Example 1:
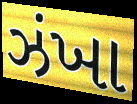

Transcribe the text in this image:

ઝંખા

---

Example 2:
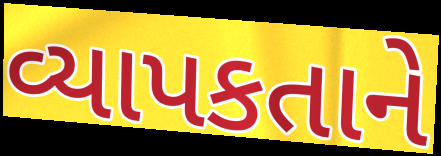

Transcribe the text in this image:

વ્યાપકતાને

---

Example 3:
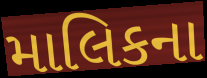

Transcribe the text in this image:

માલિકના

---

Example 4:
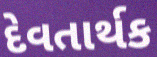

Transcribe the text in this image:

દેવતાર્થક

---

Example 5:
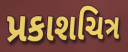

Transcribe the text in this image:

પ્રકાશચિત્ર